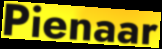
Pienaar